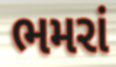
ભમરાં